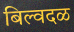
बिल्वदळ